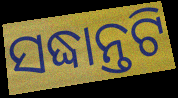
ସଦ୍ଧାନ୍ତଟି